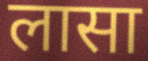
लासा